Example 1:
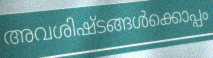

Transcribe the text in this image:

അവശിഷ്ടങ്ങൾക്കൊപ്പം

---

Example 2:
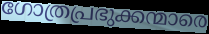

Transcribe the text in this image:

ഗോത്രപ്രഭുക്കന്മാരെ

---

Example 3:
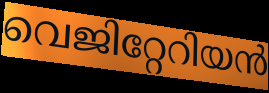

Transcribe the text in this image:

വെജിറ്റേറിയൻ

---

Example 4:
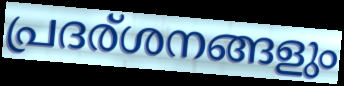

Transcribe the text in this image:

പ്രദര്ശനങ്ങളും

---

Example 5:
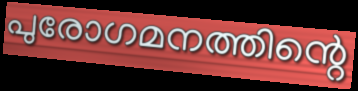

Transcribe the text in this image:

പുരോഗമനത്തിന്റെ